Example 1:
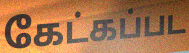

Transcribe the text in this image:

கேட்கப்பட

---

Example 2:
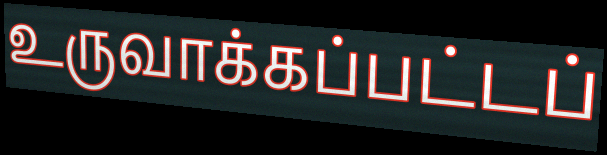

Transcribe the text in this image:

உருவாக்கப்பட்டப்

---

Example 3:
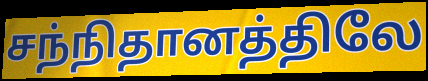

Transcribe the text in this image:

சந்நிதானத்திலே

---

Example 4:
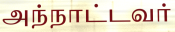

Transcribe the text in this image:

அந்நாட்டவர்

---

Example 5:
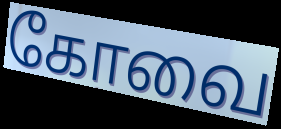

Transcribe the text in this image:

கோவை